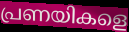
പ്രണയികളെ